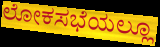
ಲೋಕಸಭೆಯಲ್ಲೂ